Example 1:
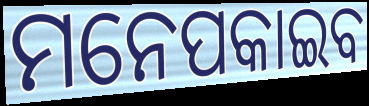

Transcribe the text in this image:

ମନେପକାଇବ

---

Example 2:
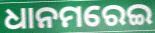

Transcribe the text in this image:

ଧାନମରେଇ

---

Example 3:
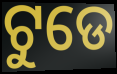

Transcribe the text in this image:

ଟୁଡେ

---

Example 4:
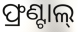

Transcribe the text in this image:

ଫ୍ରଣ୍ଟାଲ୍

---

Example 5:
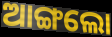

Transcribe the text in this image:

ଆଙ୍ଗଲୋ